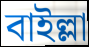
বাইল্লা